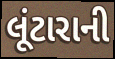
લૂંટારાની